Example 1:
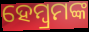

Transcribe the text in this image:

ହେମ୍ବ୍ରମଙ୍କ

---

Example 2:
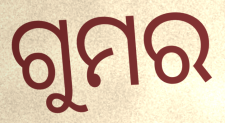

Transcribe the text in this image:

ଗୁମର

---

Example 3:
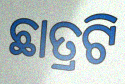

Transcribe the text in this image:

ଛାତ୍ରଟି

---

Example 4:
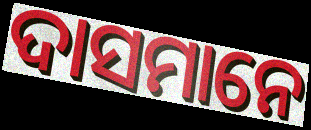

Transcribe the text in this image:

ଦାସମାନେ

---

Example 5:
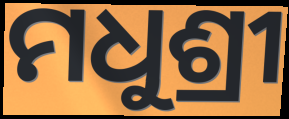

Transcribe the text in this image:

ମଧୁଶ୍ରୀ